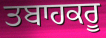
ਤਬਾਹਕਰੂ